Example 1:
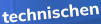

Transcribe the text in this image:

technischen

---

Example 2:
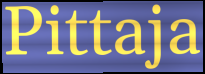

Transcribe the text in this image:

Pittaja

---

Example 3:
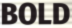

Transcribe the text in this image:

BOLD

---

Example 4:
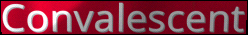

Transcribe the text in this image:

Convalescent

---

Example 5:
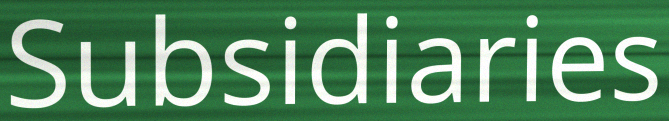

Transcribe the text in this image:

Subsidiaries